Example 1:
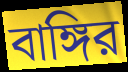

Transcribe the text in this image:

বাঙ্গির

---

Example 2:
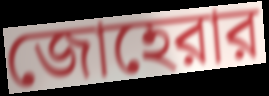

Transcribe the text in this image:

জোহেরার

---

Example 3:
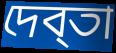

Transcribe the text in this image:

দেব্‌তা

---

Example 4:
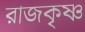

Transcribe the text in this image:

রাজকৃষ্ণ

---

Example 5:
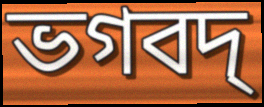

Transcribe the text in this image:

ভগবদ্